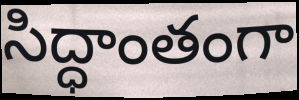
సిద్ధాంతంగా